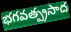
భగవత్ప్రసాద